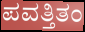
ಪವತ್ತಿತಂ